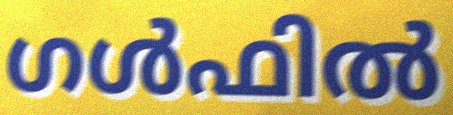
ഗൾഫിൽ